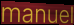
manuel